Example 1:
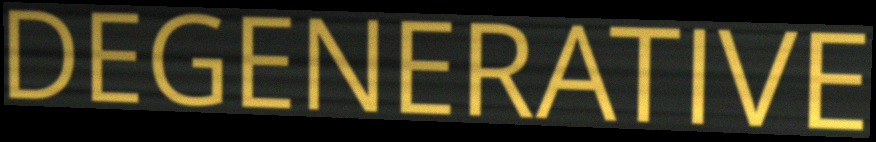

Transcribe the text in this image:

DEGENERATIVE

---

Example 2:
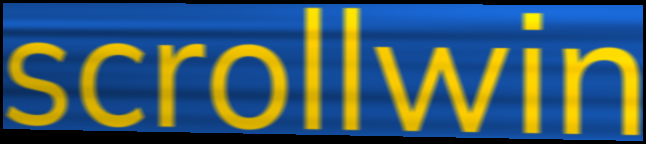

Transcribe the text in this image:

scrollwin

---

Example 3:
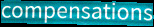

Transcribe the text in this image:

compensations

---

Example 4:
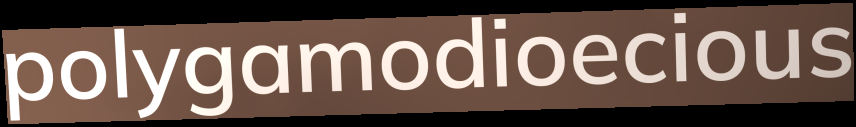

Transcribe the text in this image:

polygamodioecious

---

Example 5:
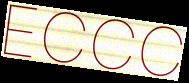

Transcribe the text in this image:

ECCC